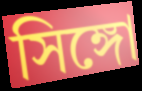
সিঙ্গো